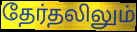
தேர்தலிலும்